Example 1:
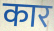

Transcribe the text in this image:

कार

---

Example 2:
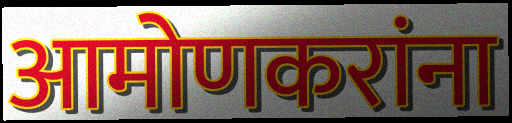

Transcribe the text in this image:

आमोणकरांना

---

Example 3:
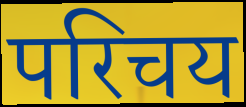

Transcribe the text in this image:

परिचय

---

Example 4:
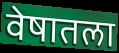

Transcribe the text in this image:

वेषातला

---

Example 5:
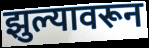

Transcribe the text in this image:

झुल्यावरून